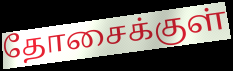
தோசைக்குள்